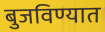
बुजविण्यात